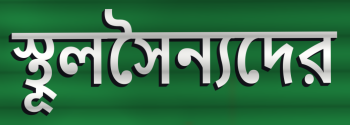
স্থূলসৈন্যদের